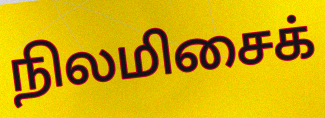
நிலமிசைக்